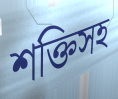
শক্তিসহ